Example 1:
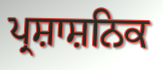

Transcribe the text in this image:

ਪ੍ਰਸ਼ਾਸ਼ਨਿਕ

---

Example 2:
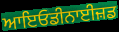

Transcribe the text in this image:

ਆਇਓਡੀਨਾਈਜ਼ਡ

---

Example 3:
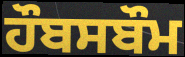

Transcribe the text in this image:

ਹੌਬਸਬੌਮ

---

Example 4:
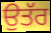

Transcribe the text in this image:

ਉਤੱਰ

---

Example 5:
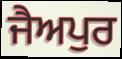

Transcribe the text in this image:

ਜੈਅਪੁਰ